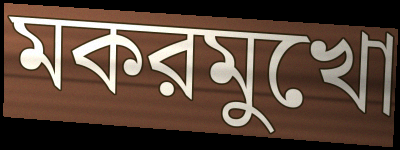
মকরমুখো